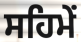
ਸਹਿਮੇਂ